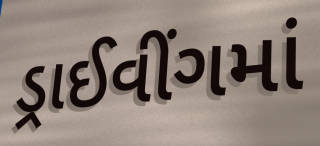
ડ્રાઈવીંગમાં